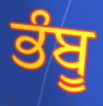
ਭੰਬੂ